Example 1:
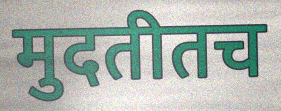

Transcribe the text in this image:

मुदतीतच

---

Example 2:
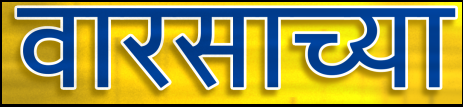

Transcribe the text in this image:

वारसाच्या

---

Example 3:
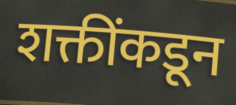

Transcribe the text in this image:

शक्तींकडून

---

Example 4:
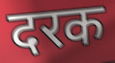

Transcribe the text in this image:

दरक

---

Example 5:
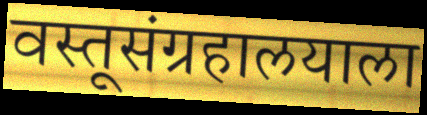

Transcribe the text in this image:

वस्तूसंग्रहालयाला